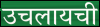
उचलायची